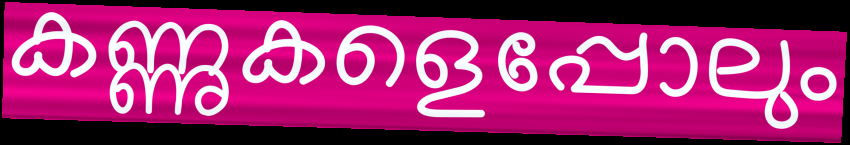
കണ്ണുകളെപ്പോലും